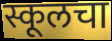
स्कूलचा